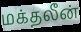
மக்தலீன்